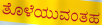
ತೊಳೆಯುವಂತಹ